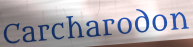
Carcharodon